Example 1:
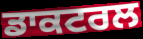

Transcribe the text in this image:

ਡਾਕਟਰਲ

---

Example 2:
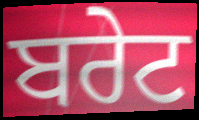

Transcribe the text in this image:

ਬਰੇਟ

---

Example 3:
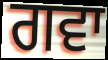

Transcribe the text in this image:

ਗਵਾ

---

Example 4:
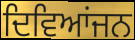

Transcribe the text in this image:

ਦਿਵਿਆਂਜਨ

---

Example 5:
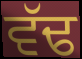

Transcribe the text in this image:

ਵੱਢ